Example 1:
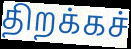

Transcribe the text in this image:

திறக்கச்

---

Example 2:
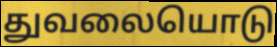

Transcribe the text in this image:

துவலையொடு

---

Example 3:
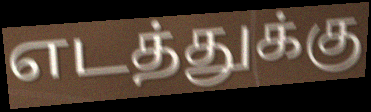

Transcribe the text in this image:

எடத்துக்கு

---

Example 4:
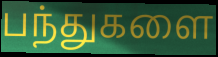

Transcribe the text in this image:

பந்துகளை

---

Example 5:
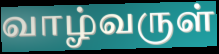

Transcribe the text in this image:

வாழ்வருள்